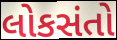
લોકસંતો